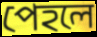
পেহলে